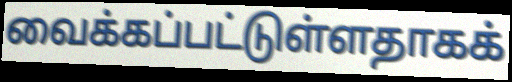
வைக்கப்பட்டுள்ளதாகக்